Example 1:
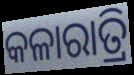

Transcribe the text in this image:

କଳାରାତ୍ରି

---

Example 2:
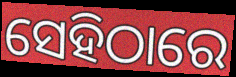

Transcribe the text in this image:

ସେହିଠାରେ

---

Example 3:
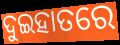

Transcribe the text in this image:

ଦୁଇହାତରେ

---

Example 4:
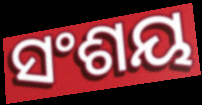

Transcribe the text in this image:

ସଂଶୟ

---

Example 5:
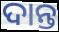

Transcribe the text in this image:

ଦାନ୍ତ